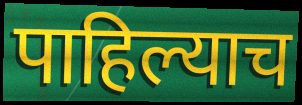
पाहिल्याच